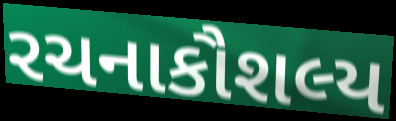
રચનાકૌશલ્ય